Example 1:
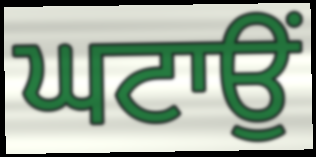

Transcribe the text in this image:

ਘਟਾਉਂ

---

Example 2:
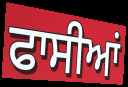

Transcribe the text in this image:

ਫਾਸੀਆਂ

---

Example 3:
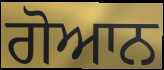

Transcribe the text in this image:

ਗੋਆਨ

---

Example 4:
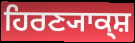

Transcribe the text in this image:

ਹਿਰਣ੍ਯਾਕ੍ਸ਼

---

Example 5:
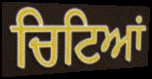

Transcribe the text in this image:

ਚਿਟਿਆਂ